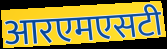
आरएमएसटी